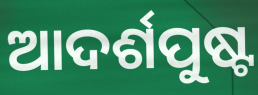
ଆଦର୍ଶପୁଷ୍ଟ